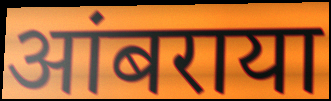
आंबराया